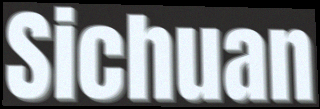
Sichuan